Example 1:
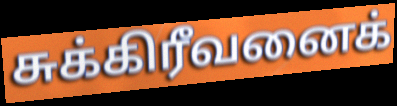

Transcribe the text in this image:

சுக்கிரீவனைக்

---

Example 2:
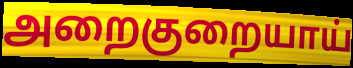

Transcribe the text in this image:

அறைகுறையாய்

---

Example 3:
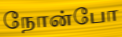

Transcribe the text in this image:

நோன்போ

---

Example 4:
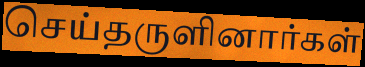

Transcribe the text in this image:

செய்தருளினார்கள்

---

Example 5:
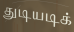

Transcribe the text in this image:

துடியடிக்